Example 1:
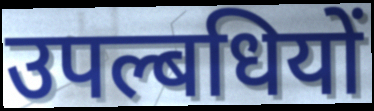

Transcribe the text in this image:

उपल्बधियों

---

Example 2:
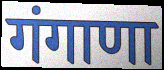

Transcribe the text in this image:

गंगाणा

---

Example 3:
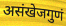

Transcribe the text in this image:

असंखेजगुणं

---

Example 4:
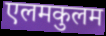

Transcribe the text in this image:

एलमकुलम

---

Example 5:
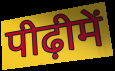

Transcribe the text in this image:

पीढ़ीमें